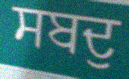
ਸਬਦੁ